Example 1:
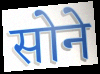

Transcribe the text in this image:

सोने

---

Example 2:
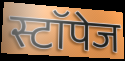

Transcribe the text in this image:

स्टॉपेज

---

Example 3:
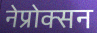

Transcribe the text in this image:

नेप्रोक्सन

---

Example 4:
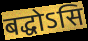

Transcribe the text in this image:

बद्धोऽसि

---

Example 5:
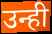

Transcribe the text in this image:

उन्ही